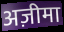
अज़ीमा